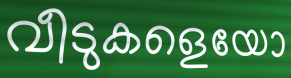
വീടുകളെയോ